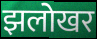
झलोखर